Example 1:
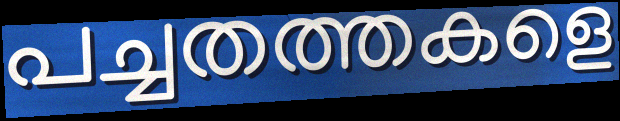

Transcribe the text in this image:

പച്ചതത്തകളെ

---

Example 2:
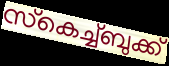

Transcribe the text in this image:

സ്‌കെച്ച്ബുക്ക്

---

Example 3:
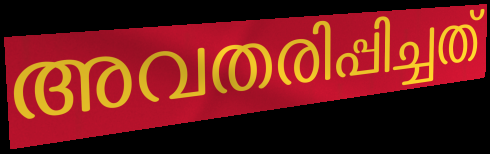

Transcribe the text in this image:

അവതരിപ്പിച്ചത്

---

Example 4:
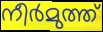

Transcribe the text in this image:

നീർമുത്ത്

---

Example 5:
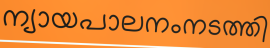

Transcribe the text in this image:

ന്യായപാലനംനടത്തി